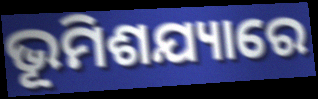
ଭୂମିଶଯ୍ୟାରେ